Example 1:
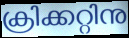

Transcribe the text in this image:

ക്രിക്കറ്റിനു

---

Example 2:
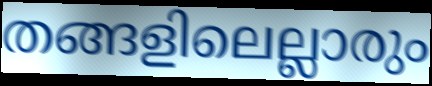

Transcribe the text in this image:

തങ്ങളിലെല്ലാരും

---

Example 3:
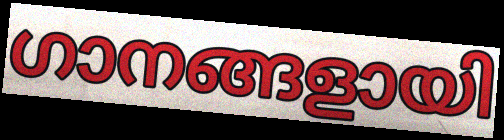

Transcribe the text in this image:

ഗാനങ്ങളായി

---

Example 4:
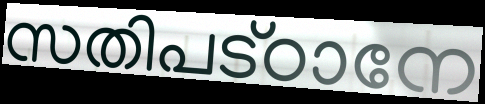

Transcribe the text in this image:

സതിപട്ഠാനേ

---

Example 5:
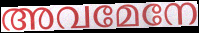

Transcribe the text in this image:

അവമേനേ